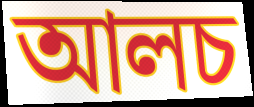
আলচ